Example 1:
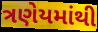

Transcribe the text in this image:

ત્રણેયમાંથી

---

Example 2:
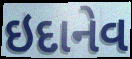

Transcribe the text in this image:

ઇદાનેવ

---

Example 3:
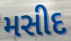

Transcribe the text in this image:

મસીદ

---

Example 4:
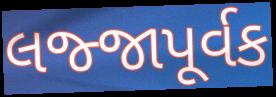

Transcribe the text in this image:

લજ્જાપૂર્વક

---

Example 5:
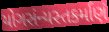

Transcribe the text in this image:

યોગસંન્યસ્તકર્માણં